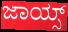
ಜಾಯ್ಸ್